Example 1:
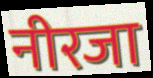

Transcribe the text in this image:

नीरजा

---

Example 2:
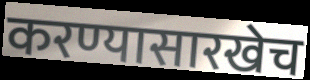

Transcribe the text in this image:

करण्यासारखेच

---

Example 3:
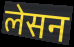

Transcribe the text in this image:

लेसन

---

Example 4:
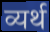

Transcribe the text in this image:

व्यर्थ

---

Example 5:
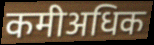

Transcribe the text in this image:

कमीअधिक